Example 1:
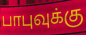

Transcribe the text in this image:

பாபுவுக்கு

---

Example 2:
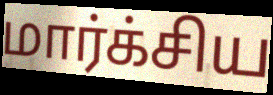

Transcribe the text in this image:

மார்க்சிய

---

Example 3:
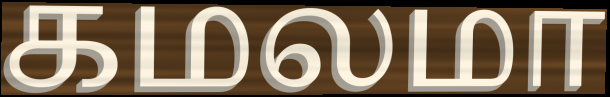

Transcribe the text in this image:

கமலமா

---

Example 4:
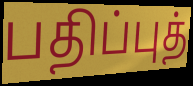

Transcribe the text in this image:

பதிப்புத்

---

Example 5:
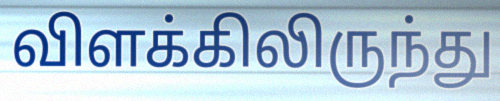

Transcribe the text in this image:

விளக்கிலிருந்து